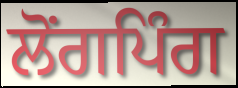
ਲੋਂਗਪਿੰਗ